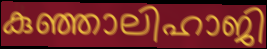
കുഞ്ഞാലിഹാജി